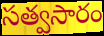
సత్వసారం